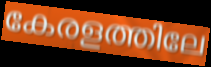
കേരളത്തിലേ